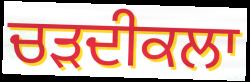
ਚੜਦੀਕਲਾ